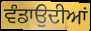
ਵੰਡਾਉਦੀਆਂ